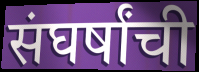
संघर्षांची